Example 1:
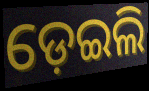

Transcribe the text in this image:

ଡ଼େଇଲି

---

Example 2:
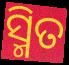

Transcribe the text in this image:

ସ୍ମିତ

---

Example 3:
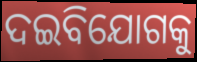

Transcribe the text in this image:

ଦଇବିଯୋଗକୁ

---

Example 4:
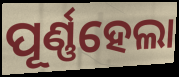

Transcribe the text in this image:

ପୂର୍ଣ୍ଣହେଲା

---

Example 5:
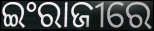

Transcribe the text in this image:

ଇଂରାଜୀରେ